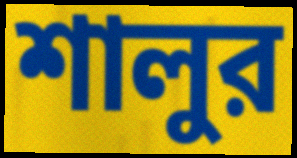
শালুর